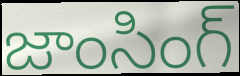
జాంసింగ్